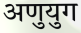
अणुयुग